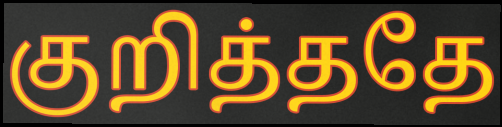
குறித்ததே